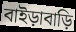
বাইড়াবাড়ি